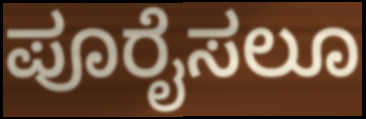
ಪೂರೈಸಲೂ